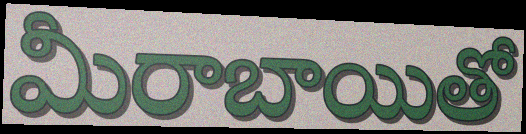
మీరాబాయితో